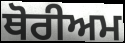
ਥੋਰੀਅਮ